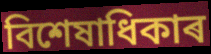
বিশেষাধিকাৰ